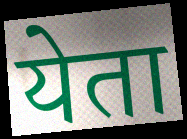
येता